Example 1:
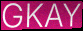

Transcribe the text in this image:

GKAY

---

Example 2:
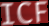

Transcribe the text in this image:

ICF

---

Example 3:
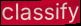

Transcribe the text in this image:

classify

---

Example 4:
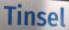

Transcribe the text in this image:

Tinsel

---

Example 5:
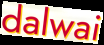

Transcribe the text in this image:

dalwai